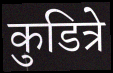
कुडित्रे